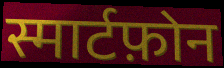
स्‍मार्टफ़ोन